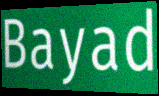
Bayad